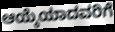
ಆಯ್ಕೆಯಾದವರಿಗೆ